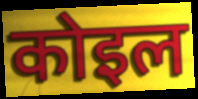
कोइल